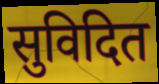
सुविदित